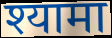
श्‍यामा